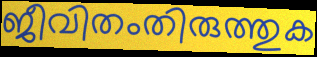
ജീവിതംതിരുത്തുക